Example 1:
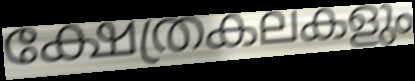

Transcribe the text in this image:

ക്ഷേത്രകലകളും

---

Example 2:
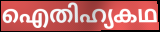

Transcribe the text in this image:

ഐതിഹ്യകഥ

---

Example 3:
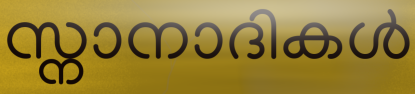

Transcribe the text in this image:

സ്നാനാദികൾ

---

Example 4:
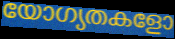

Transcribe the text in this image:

യോഗ്യതകളോ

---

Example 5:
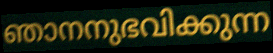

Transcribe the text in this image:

ഞാനനുഭവിക്കുന്ന